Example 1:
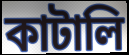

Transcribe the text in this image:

কাটালি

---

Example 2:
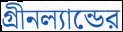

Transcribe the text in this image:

গ্রীনল্যান্ডের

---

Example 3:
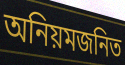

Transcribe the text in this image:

অনিয়মজনিত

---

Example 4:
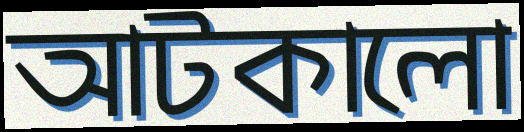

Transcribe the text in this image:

আটকালো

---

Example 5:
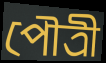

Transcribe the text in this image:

পৌত্রী